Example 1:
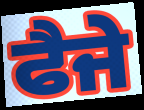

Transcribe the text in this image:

ਫੈਜੇ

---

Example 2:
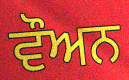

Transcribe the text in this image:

ਵੌਅਨ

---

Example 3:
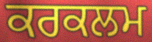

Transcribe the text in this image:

ਕਰਕਲਮ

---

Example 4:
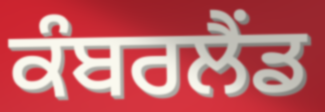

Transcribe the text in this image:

ਕੰਬਰਲੈਂਡ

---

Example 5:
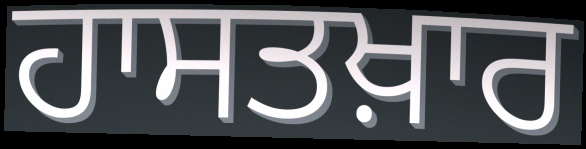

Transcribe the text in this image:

ਹਾਸਤਖ਼ਾਰ